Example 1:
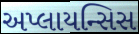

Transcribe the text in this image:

અપ્લાયન્સિસ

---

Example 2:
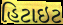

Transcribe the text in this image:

હિટાઇટ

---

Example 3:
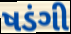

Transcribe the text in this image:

ષડંગી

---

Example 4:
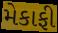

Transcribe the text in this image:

મેકાફી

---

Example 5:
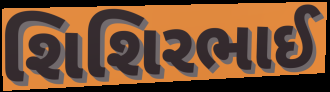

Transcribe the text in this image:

શિશિરભાઈ